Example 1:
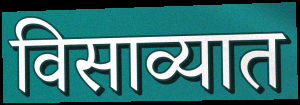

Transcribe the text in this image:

विसाव्यात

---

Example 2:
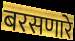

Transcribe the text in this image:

बरसणारे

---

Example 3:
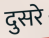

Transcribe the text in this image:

दुसरे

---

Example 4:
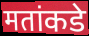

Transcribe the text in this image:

मतांकडे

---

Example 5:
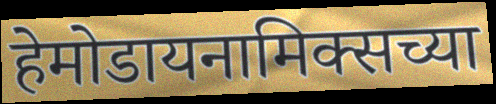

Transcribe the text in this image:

हेमोडायनामिक्सच्या